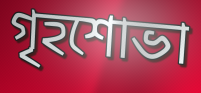
গৃহশোভা